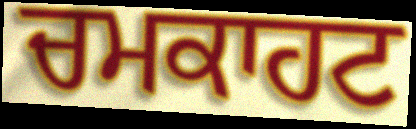
ਚਮਕਾਹਟ